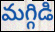
మగ్గిడి